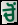
ਚੋਂ